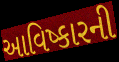
આવિષ્કારની